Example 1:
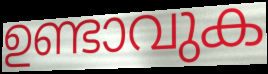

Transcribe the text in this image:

ഉണ്ടാവുക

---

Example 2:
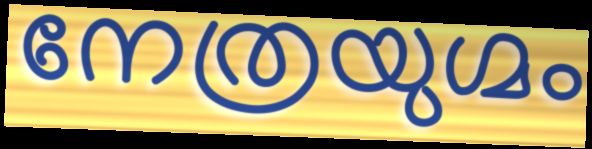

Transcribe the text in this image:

നേത്രയുഗ്മം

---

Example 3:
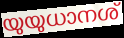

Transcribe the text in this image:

യുയുധാനശ്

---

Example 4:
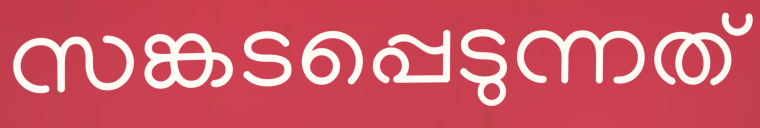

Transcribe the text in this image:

സങ്കടപ്പെടുന്നത്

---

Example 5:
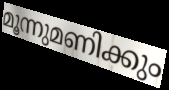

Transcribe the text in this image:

മൂന്നുമണിക്കും